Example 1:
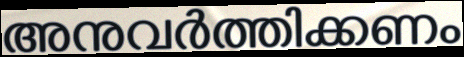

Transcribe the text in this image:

അനുവർത്തിക്കണം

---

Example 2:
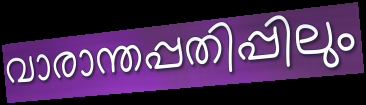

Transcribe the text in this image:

വാരാന്തപ്പതിപ്പിലും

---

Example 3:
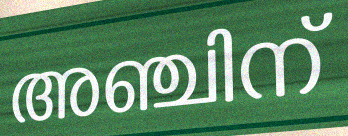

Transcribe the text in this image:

അഞ്ചിന്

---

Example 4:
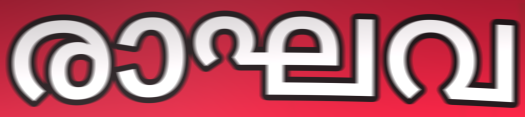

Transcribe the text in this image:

രാഘവ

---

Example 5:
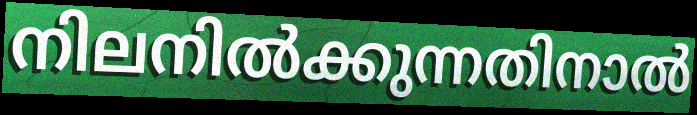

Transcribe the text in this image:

നിലനിൽക്കുന്നതിനാൽ